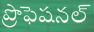
ప్రొఫెషనల్